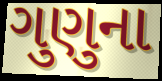
ગુણુના